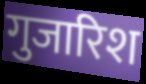
गुजारिश